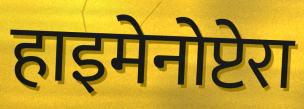
हाइमेनोप्टेरा